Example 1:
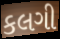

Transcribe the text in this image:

કલગી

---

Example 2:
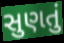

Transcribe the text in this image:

સુણતું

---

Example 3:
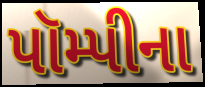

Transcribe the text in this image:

પૉમ્પીના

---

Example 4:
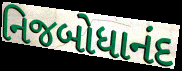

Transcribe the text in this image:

નિજબોધાનંદ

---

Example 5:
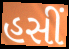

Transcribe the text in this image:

હસીં